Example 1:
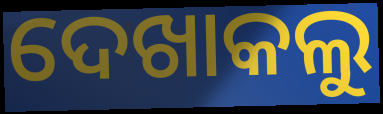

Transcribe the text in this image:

ଦେଖାକଲୁ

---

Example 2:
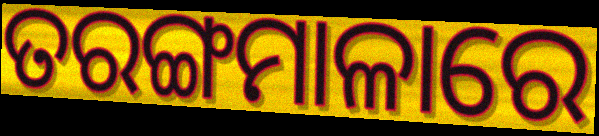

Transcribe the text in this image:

ତରଙ୍ଗମାଳାରେ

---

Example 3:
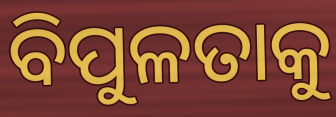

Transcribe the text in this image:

ବିପୁଳତାକୁ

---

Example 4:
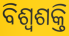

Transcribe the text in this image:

ବିଶ୍ଵଶକ୍ତି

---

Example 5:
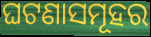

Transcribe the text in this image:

ଘଟଣାସମୂହର